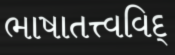
ભાષાતત્ત્વવિદ્